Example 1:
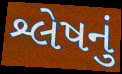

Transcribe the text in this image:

શ્લેષનું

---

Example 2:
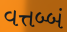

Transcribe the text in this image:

વત્તબ્બં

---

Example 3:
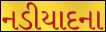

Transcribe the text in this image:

નડીયાદના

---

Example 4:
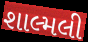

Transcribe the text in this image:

શાલ્મલી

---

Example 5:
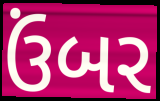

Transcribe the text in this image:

ઉંબર